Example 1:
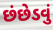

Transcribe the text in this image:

છંછેડવું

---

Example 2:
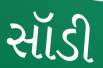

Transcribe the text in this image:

સૉડી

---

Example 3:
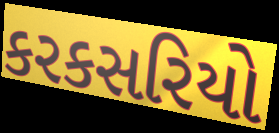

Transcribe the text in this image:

કરકસરિયો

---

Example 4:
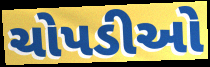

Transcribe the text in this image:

ચોપડીઓ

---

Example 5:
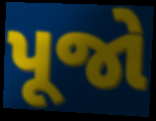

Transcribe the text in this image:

પૂજો